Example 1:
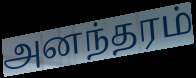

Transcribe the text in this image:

அனந்தரம்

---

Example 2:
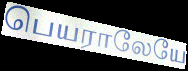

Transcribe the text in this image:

பெயராலேயே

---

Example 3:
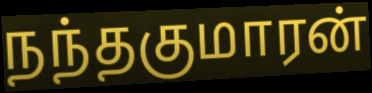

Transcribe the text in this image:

நந்தகுமாரன்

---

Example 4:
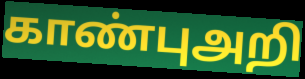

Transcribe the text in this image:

காண்புஅறி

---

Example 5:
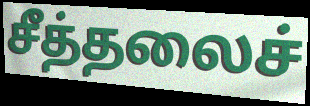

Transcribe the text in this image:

சீத்தலைச்